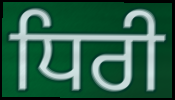
ਧਿਰੀ